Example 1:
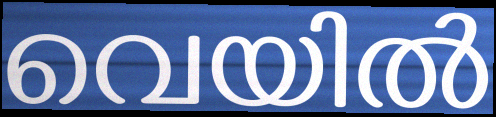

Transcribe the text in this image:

വെയിൽ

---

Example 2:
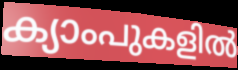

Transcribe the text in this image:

ക്യാംപുകളിൽ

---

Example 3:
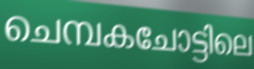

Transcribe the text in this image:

ചെമ്പകചോട്ടിലെ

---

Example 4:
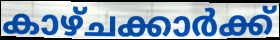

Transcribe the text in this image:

കാഴ്ചക്കാർക്ക്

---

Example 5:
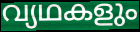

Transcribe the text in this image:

വ്യഥകളും